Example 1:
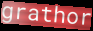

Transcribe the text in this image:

grathor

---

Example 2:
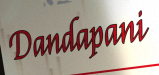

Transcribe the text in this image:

Dandapani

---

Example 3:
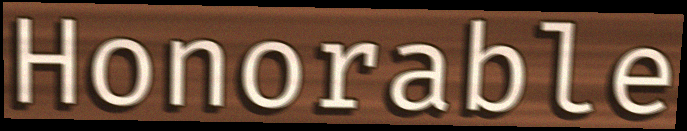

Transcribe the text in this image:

Honorable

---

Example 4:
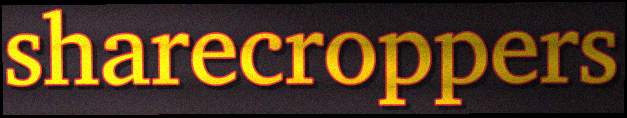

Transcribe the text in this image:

sharecroppers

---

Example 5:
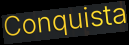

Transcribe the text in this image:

Conquista